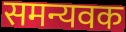
समन्यवक